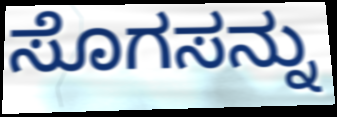
ಸೊಗಸನ್ನು